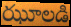
ఝూలడి